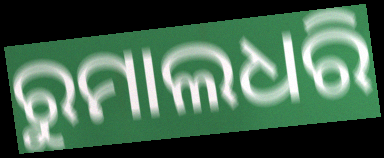
ରୁମାଲଧରି